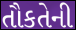
તૌકતેની